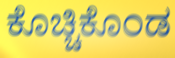
ಕೊಚ್ಚಿಕೊಂಡ